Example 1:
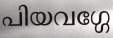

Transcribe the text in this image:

പിയവഗ്ഗേ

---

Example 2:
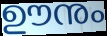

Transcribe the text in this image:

ഊനും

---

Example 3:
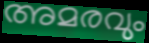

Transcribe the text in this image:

അമരവും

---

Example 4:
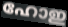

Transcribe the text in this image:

ഹോഇ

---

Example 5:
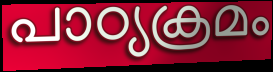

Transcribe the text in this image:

പാഠ്യക്രമം